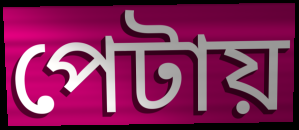
পেটায়